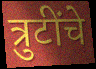
त्रुटींचे